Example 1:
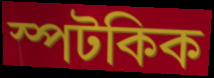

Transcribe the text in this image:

স্পটকিক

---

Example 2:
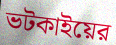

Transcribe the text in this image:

ভটকাইয়ের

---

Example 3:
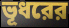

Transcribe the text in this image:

ভূধরের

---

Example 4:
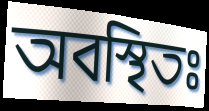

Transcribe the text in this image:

অবস্থিতঃ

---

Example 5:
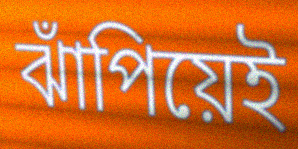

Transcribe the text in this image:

ঝাঁপিয়েই